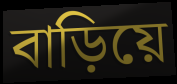
বাড়িয়ে